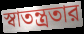
স্বাতন্ত্রতার